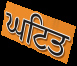
ਘਟਿਤ